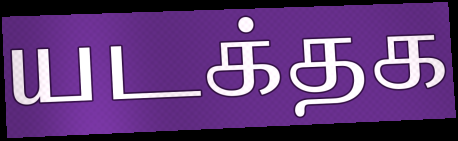
யடக்தக